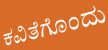
ಕವಿತೆಗೊಂದು